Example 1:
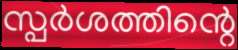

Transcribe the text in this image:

സ്പർശത്തിന്റെ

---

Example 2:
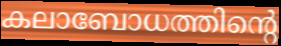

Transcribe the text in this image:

കലാബോധത്തിന്റെ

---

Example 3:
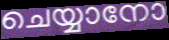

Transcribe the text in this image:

ചെയ്യാനോ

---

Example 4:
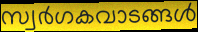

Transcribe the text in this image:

സ്വർഗകവാടങ്ങൾ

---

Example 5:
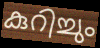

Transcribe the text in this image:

കുറിച്ചും